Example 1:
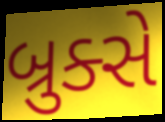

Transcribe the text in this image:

બ્રુક્સે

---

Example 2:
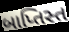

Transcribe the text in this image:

બાપ્તિસ્ત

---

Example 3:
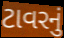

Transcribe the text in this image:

ટાવરનું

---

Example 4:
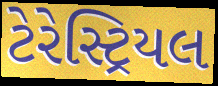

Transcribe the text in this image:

ટેરેસ્ટ્રિયલ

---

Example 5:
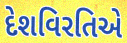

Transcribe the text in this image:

દેશવિરતિએ